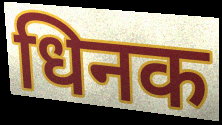
धिनक